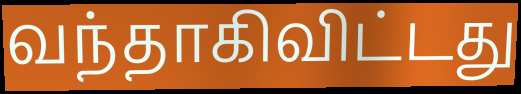
வந்தாகிவிட்டது